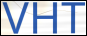
VHT